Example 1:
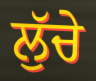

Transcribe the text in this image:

ਲੁੱਚੇ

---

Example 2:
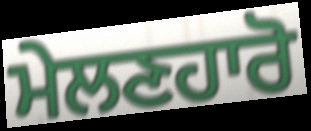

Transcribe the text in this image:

ਮੇਲਣਹਾਰੋ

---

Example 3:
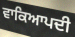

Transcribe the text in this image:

ਵਾਕਿਆਪਦੀ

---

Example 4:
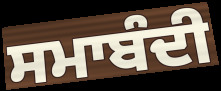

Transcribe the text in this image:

ਸਮਾਬੰਦੀ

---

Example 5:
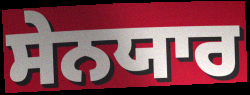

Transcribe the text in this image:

ਸੇਨਯਾਰ